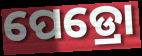
ପେଡ୍ରୋ